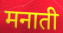
मनाती